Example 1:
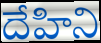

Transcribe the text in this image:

దేహిని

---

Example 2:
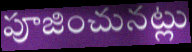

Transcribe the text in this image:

పూజించునట్లు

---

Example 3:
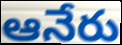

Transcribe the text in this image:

ఆనేరు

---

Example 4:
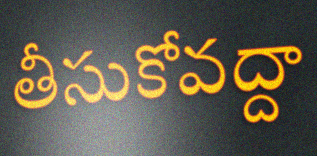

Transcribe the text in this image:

తీసుకోవద్దా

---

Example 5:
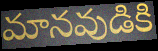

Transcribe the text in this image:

మానవుడికి